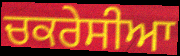
ਚਕਰੇਸੀਆ